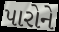
પારોને